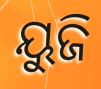
ୟୁଜି